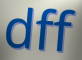
dff